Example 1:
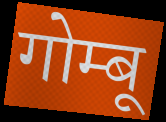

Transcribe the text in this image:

गोम्बू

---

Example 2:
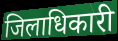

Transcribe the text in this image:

जिलाधिकारी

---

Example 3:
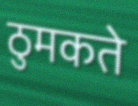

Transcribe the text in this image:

ठुमकते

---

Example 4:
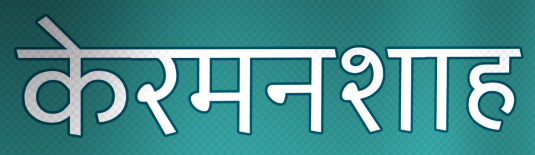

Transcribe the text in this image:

केरमनशाह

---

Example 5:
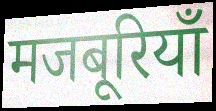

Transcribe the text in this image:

मजबूरियाँ